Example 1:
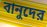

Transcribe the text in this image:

বানুদের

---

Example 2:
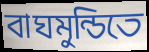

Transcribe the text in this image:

বাঘমুন্ডিতে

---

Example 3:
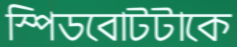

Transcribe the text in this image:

স্পিডবোটটাকে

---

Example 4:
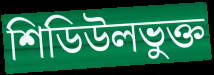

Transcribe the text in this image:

শিডিউলভুক্ত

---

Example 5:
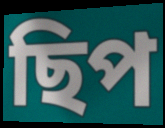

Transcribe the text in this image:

ছিপ